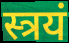
स्त्रयं